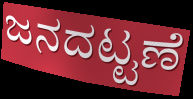
ಜನದಟ್ಟಣೆ